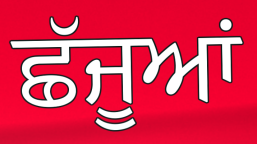
ਛੱਜੂਆਂ